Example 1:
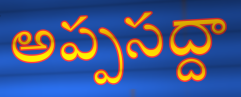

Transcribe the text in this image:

అప్పసద్దా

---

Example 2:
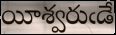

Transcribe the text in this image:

యీశ్వరుఁడే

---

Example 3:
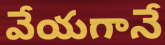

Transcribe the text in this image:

వేయగానే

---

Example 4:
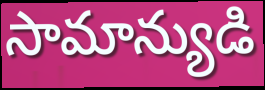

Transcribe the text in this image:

సామాన్యుడి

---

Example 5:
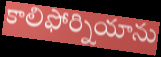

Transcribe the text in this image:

కాలిఫోర్నియాను